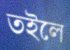
তইলে